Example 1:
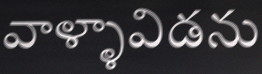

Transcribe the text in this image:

వాళ్ళావిడను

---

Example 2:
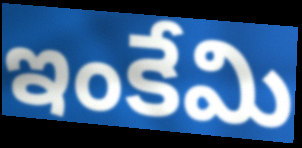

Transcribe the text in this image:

ఇంకేమి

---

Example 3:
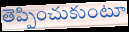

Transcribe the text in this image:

తెప్పించుకుంటూ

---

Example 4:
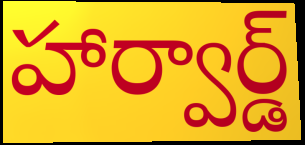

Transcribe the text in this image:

హార్వార్డ్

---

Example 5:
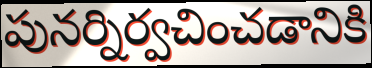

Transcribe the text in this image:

పునర్నిర్వచించడానికి